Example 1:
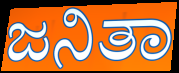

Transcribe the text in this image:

ಜನಿತಾ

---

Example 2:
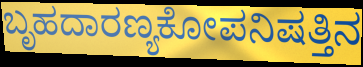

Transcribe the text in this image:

ಬೃಹದಾರಣ್ಯಕೋಪನಿಷತ್ತಿನ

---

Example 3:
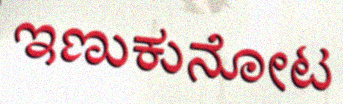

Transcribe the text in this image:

ಇಣುಕುನೋಟ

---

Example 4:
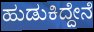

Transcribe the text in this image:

ಹುಡುಕಿದ್ದೇನೆ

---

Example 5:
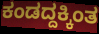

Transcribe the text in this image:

ಕಂಡದ್ದಕ್ಕಿಂತ